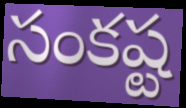
సంకష్ట